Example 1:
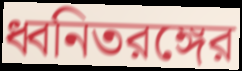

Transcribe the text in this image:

ধ্বনিতরঙ্গের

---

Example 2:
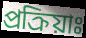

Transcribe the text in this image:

প্রক্রিয়াঃ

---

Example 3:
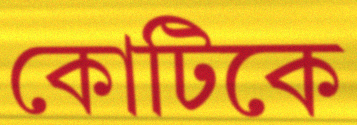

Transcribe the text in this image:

কোটিকে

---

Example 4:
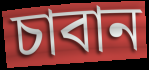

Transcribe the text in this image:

চাবান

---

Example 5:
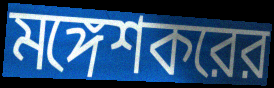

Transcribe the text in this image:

মঙ্গেশকরের